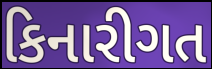
કિનારીગત